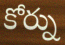
కోర్ను